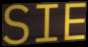
SIE